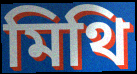
মিথি